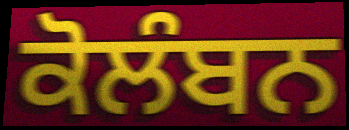
ਕੋਲੰਬਨ